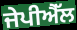
ਜੇਪੀਐੱਲ